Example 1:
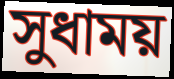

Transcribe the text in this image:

সুধাময়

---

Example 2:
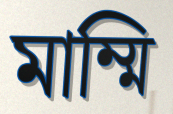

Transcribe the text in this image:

মাম্মি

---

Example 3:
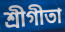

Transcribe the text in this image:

শ্রীগীতা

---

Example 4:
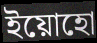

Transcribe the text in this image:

ইয়োহো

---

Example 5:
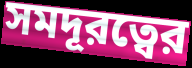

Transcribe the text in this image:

সমদূরত্বের